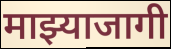
माझ्याजागी